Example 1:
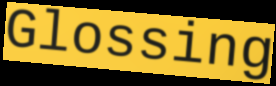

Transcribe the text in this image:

Glossing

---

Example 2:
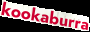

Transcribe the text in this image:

kookaburra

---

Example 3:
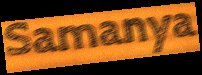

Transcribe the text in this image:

Samanya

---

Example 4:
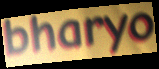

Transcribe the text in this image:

bharyo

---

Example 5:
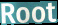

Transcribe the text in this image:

Root